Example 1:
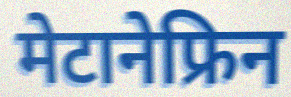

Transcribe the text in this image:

मेटानेफ्रिन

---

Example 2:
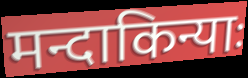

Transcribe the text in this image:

मन्दाकिन्याः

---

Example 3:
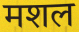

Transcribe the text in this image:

मशल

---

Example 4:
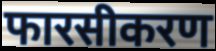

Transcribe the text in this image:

फारसीकरण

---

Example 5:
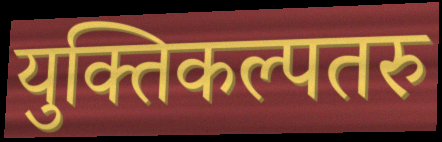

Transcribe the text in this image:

युक्तिकल्पतरु